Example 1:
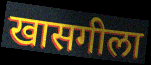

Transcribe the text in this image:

खासगीला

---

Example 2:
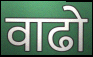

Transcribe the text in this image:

वाढो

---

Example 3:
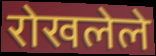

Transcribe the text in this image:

रोखलेले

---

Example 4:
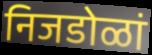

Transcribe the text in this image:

निजडोळां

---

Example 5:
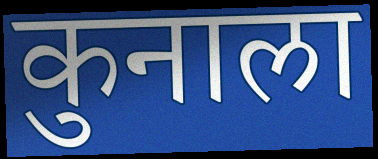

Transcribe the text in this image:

कुनाला